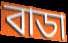
বাডা